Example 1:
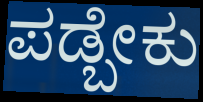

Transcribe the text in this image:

ಪಡ್ಬೇಕು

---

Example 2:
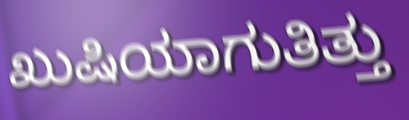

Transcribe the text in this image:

ಖುಷಿಯಾಗುತಿತ್ತು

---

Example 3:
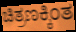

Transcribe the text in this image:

ಚಿತ್ರಣಕ್ಕಿಂತ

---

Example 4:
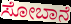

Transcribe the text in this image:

ಸೋಬಾನೆ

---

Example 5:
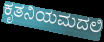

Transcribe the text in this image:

ಕೃತನಿಯಮದಲಿ